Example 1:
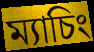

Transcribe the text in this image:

ম্যাচিং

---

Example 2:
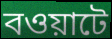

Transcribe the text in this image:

বওয়াটে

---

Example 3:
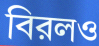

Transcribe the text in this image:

বিরলও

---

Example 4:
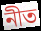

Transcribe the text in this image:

নীত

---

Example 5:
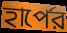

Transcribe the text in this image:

হার্পের